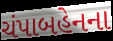
ચંપાબહેનના